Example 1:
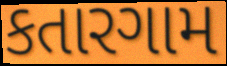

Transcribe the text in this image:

કતારગામ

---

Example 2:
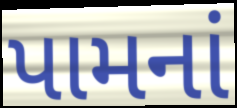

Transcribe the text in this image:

પામનાં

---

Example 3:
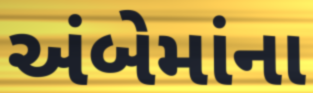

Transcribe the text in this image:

અંબેમાંના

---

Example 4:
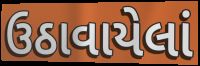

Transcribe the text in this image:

ઉઠાવાયેલાં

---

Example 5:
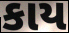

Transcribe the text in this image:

કાય